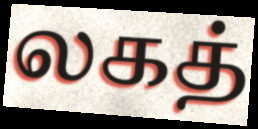
லகத்